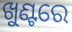
ଖୁଣ୍ଟରେ